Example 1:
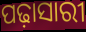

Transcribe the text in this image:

ପଢ଼ାସାରୀ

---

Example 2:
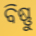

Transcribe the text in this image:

ବିଷ୍ଣୁ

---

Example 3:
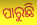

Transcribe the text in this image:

ପାରୁଛି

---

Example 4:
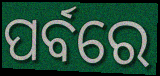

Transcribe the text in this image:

ପର୍ବରେ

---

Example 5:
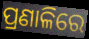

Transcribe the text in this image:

ପ୍ରଣାଳିରେ